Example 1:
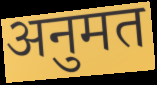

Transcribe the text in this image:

अनुमत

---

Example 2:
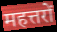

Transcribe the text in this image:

महत्तरों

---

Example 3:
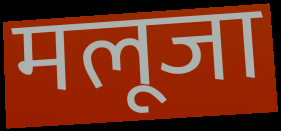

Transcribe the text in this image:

मलूजा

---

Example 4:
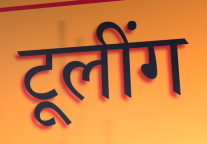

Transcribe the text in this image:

टूलींग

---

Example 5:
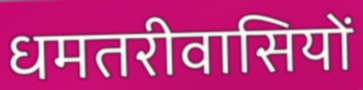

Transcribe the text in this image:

धमतरीवासियों